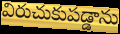
విరుచుకుపడ్డాను